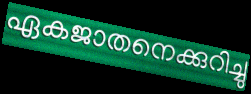
ഏകജാതനെക്കുറിച്ചു